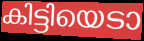
കിട്ടിയെടാ